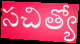
సచిత్యో